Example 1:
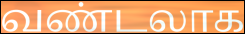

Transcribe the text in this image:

வண்டலாக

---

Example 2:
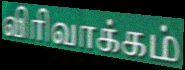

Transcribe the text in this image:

விரிவாக்கம்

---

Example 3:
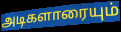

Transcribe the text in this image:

அடிகளாரையும்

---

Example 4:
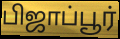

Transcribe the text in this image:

பிஜாப்பூர்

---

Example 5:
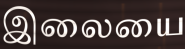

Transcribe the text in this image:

இலையை